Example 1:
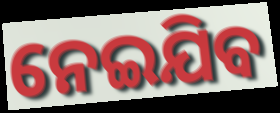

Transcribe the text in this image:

ନେଇଯିବ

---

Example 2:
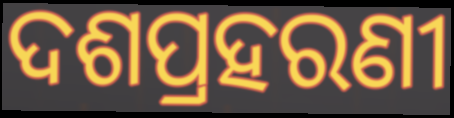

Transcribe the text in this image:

ଦଶପ୍ରହରଣୀ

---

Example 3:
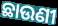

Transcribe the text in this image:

ଛାଉଣୀ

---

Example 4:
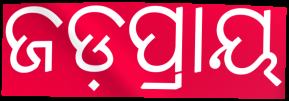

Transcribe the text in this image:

ଜଡ଼ପ୍ରାୟ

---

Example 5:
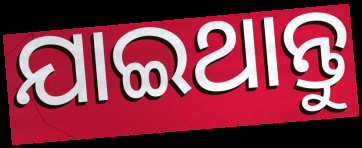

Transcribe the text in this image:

ଯାଇଥାନ୍ତୁ